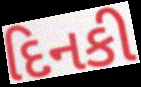
દિનકી